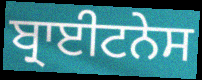
ਬ੍ਰਾਈਟਨੇਸ